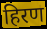
हिरण